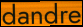
dandre